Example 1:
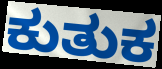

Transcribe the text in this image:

ಕುತುಕ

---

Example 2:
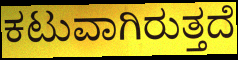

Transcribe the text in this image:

ಕಟುವಾಗಿರುತ್ತದೆ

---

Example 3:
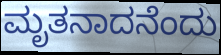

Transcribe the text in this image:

ಮೃತನಾದನೆಂದು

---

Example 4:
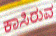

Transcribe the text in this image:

ಕಾಸಿರುವ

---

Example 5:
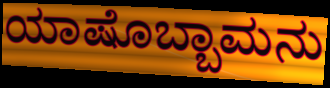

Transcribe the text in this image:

ಯಾಷೊಬ್ಬಾಮನು